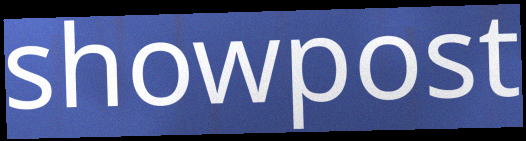
showpost